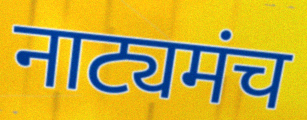
नाट्यमंच